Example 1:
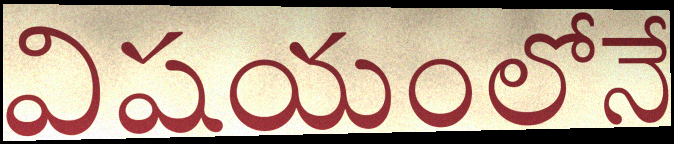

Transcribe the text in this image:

విషయంలోనే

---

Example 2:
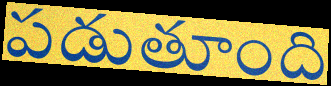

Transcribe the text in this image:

పడుతూంది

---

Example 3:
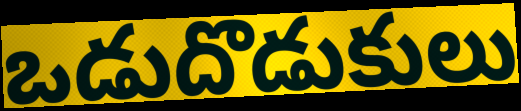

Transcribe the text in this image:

ఒడుదొడుకులు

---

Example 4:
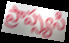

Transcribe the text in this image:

ప్రాప్స్యసి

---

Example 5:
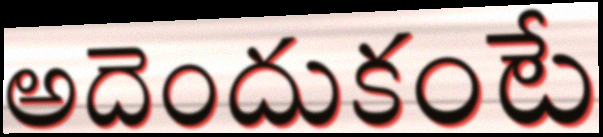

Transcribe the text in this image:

అదెందుకంటే